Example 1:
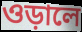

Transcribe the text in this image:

ওড়ালে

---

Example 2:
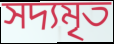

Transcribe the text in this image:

সদ্যমৃত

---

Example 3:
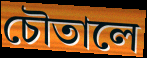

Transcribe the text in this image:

চৌতালে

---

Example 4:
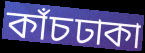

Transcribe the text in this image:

কাঁচঢাকা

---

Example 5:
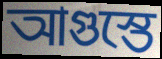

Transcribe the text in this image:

আগুস্তে